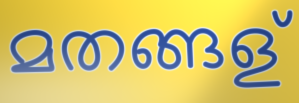
മതങ്ങള്